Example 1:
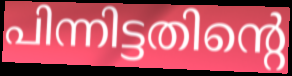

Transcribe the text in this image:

പിന്നിട്ടതിന്റെ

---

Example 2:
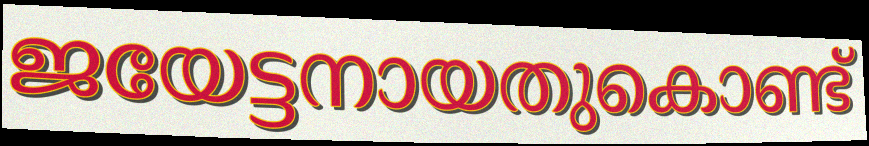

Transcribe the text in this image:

ജയേട്ടനായതുകൊണ്ട്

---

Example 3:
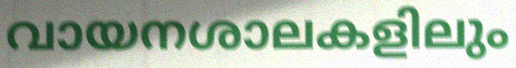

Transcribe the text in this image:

വായനശാലകളിലും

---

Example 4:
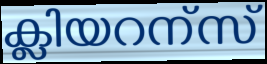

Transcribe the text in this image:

ക്ലിയറന്സ്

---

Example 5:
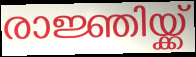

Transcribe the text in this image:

രാജ്ഞിയ്ക്ക്